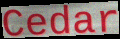
Cedar